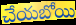
చేయబోయి